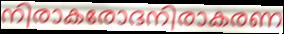
നിരാകരോദനിരാകരണ